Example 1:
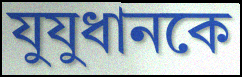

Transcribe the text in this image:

যুযুধানকে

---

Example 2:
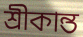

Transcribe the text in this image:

শ্রীকান্ত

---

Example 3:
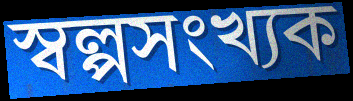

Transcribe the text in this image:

স্বল্পসংখ্যক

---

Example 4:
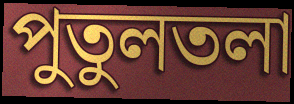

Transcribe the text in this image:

পুতুলতলা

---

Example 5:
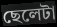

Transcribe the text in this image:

ছেলেটা